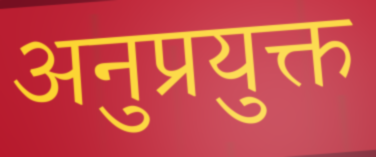
अनुप्रयुक्त